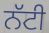
ਨੱਟੀ